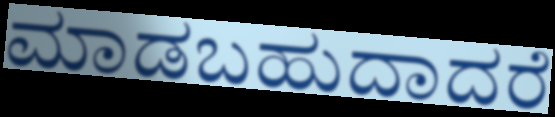
ಮಾಡಬಹುದಾದರೆ